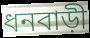
ধনবাড়ী